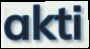
akti